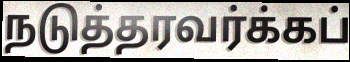
நடுத்தரவர்க்கப்